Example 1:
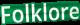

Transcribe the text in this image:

Folklore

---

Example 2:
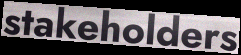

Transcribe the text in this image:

stakeholders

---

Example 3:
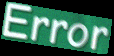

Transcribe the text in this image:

Error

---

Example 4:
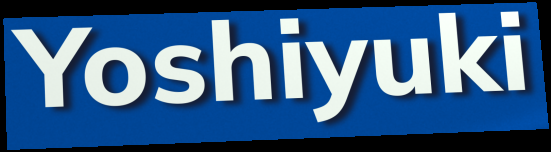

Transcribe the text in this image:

Yoshiyuki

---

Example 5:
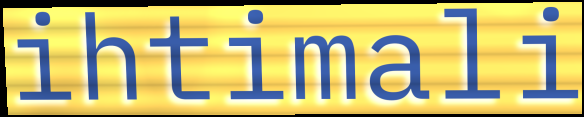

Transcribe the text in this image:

ihtimali